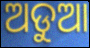
ଅଡୁଆ